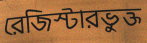
রেজিস্টারভুক্ত